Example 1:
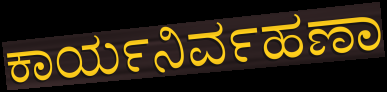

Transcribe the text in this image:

ಕಾರ್ಯನಿರ್ವಹಣಾ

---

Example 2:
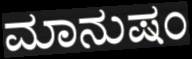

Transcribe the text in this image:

ಮಾನುಷಂ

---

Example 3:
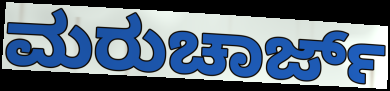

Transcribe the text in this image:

ಮರುಚಾರ್ಜ್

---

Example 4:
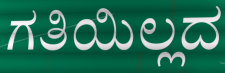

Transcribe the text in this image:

ಗತಿಯಿಲ್ಲದ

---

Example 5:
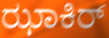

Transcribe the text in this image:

ಝಾಕಿರ್